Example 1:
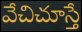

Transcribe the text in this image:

వేచిచూస్తే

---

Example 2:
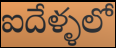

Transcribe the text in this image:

ఐదేళ్ళలో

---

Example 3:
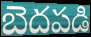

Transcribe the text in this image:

బెదపడి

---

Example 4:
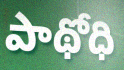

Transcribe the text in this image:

పాథోధి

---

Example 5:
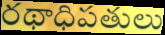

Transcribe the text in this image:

రథాధిపతులు